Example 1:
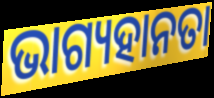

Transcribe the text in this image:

ଭାଗ୍ୟହାନତା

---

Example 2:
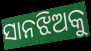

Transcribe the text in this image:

ସାନଝିଅକୁ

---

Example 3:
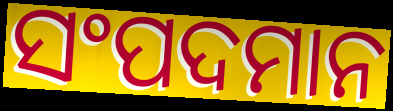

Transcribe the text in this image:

ସଂପଦମାନ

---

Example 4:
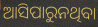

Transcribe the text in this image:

ଆସିପାରୁନଥିବା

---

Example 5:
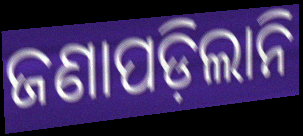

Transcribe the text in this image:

ଜଣାପଡ଼ିଲାନି